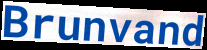
Brunvand